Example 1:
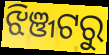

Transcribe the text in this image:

ଝିଞ୍ଜଟରୁ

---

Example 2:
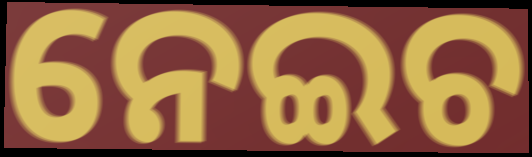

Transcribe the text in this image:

ନେଇଚ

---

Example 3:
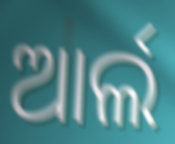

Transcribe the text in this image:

ଆର୍ଲ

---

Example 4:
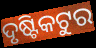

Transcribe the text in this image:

ଦୃଷ୍ଟିକଟୁର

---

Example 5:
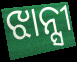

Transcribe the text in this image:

ଝାନ୍ସୀ